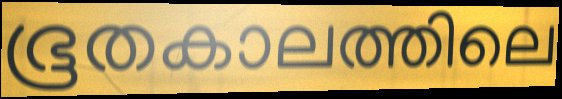
ഭൂതകാലത്തിലെ